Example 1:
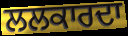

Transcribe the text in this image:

ਲਲਕਾਰਦਾ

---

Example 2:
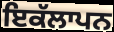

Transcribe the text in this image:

ਇਕੱਲਾਪਨ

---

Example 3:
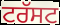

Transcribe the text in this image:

ਟਰੱਸਟ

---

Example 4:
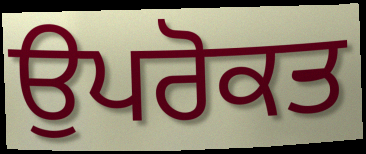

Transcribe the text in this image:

ਉਪਰੋਕਤ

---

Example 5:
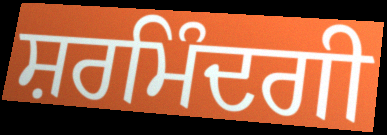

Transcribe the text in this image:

ਸ਼ਰਮਿੰਦਗੀ